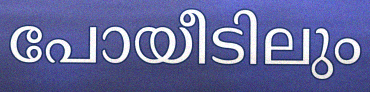
പോയീടിലും